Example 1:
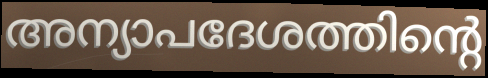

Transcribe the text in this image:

അന്യാപദേശത്തിന്റെ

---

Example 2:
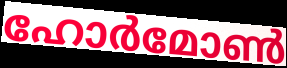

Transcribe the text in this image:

ഹോർമോൺ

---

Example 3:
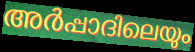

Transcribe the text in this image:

അർപ്പാദിലെയും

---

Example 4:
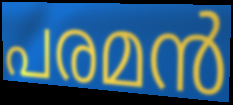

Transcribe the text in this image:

പരമൻ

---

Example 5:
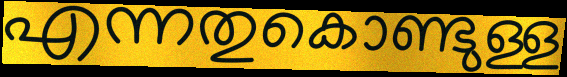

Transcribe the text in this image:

എന്നതുകൊണ്ടുള്ള